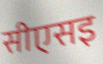
सीएसइ